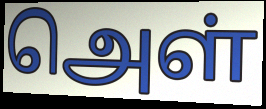
அெள்